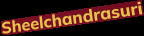
Sheelchandrasuri